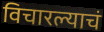
विचारल्याचं